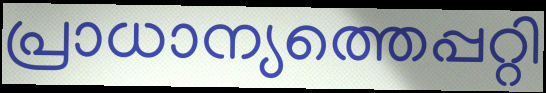
പ്രാധാന്യത്തെപ്പറ്റി